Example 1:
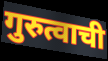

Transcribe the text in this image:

गुरुत्वाची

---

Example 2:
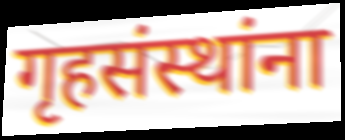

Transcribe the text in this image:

गृहसंस्थांना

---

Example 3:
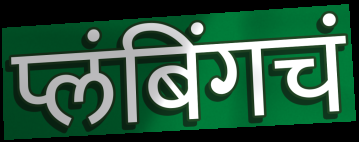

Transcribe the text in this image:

प्लंबिंगचं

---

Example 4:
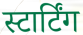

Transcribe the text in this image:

स्टार्टिंग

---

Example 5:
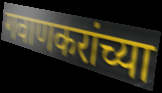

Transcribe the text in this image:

गवाणकरांच्या